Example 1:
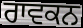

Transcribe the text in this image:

ਰਾਵਕਨ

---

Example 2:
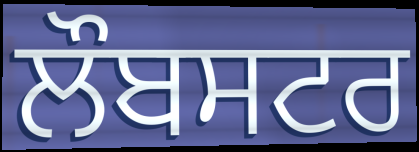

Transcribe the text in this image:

ਲੌਬਸਟਰ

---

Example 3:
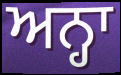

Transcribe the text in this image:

ਅਨ੍ਹਾ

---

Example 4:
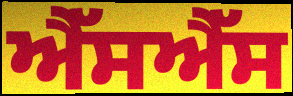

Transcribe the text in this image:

ਐੱਸਐੱਸ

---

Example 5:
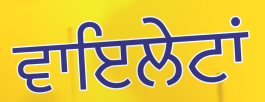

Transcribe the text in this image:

ਵਾਇਲੇਟਾਂ